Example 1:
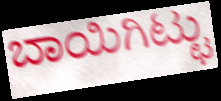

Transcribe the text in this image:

ಬಾಯಿಗಿಟ್ಟು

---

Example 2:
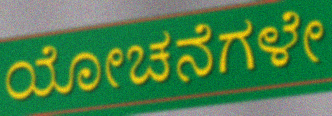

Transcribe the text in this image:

ಯೋಚನೆಗಳೇ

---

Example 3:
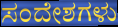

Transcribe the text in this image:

ಸಂದೇಶಗಳು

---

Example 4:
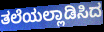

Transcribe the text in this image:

ತಲೆಯಲ್ಲಾಡಿಸಿದ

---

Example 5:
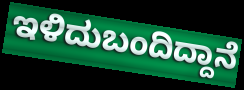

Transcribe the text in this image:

ಇಳಿದುಬಂದಿದ್ದಾನೆ